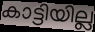
കാട്ടിയില്ല